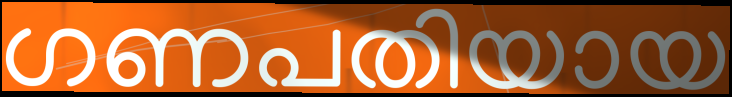
ഗണപതിയായ